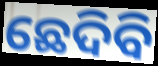
ଛେଦିବି